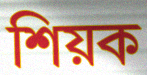
শিয়ক